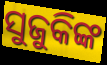
ସୁଜୁକିଙ୍କ